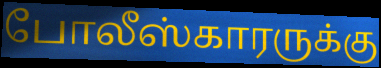
போலீஸ்காரருக்கு